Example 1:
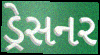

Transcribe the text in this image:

ડ્રેસનર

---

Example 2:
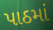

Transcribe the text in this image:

પાઠમાં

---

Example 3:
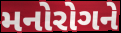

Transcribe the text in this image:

મનોરોગને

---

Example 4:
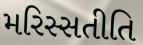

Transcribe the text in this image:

મરિસ્સતીતિ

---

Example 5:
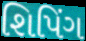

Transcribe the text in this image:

શિપિંગ